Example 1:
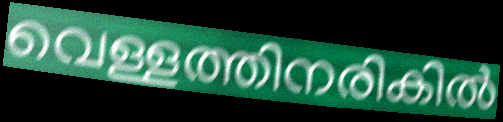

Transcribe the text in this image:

വെള്ളത്തിനരികിൽ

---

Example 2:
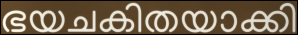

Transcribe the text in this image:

ഭയചകിതയാക്കി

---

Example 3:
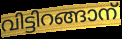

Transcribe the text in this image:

വിട്ടിറങ്ങാന്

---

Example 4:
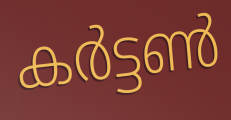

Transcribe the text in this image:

കർട്ടൺ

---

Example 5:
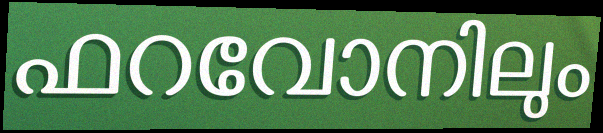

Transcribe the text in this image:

ഫറവോനിലും